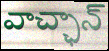
వాచ్ఛాన్